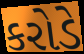
કરોડે